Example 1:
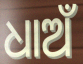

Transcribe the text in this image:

ଧାଅଁ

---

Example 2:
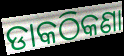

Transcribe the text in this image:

ଡାକଠିକଣା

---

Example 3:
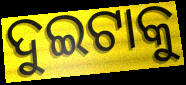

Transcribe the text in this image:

ଦୁଇଟାକୁ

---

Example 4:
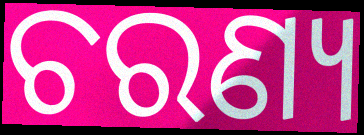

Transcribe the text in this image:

ଚରଣ୍ୟ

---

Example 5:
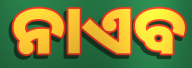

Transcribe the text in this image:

ନାଏବ